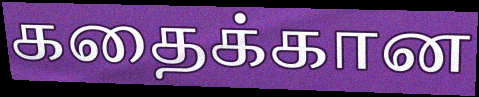
கதைக்கான